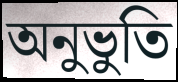
অনুভুতি